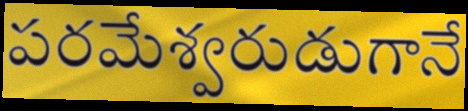
పరమేశ్వరుడుగానే